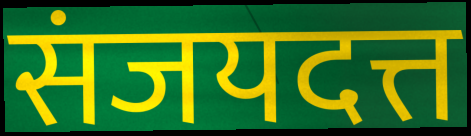
संजयदत्त